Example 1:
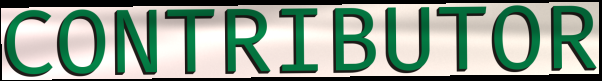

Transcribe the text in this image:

CONTRIBUTOR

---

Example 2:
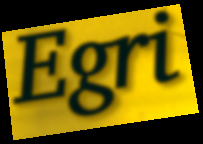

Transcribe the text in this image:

Egri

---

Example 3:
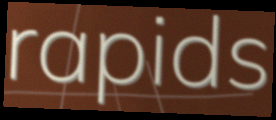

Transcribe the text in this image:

rapids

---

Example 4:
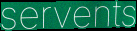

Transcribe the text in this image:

servents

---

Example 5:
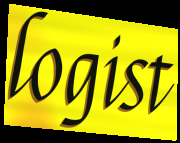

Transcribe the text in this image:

logist